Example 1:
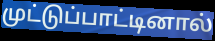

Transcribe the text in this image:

முட்டுப்பாட்டினால்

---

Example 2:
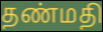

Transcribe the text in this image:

தண்மதி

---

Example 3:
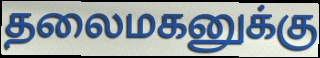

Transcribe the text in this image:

தலைமகனுக்கு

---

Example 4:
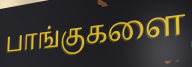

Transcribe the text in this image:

பாங்குகளை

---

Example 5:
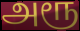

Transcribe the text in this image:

அரூ